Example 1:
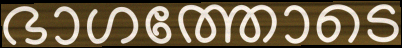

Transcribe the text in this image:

ഭാഗത്തോടെ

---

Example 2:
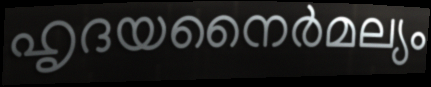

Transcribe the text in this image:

ഹൃദയനൈർമല്യം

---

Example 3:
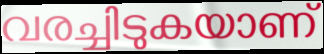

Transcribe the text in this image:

വരച്ചിടുകയാണ്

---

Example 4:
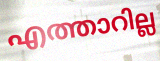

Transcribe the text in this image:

എത്താറില്ല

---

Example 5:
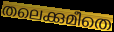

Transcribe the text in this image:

തലെക്കുമീതെ